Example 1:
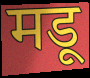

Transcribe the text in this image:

मडू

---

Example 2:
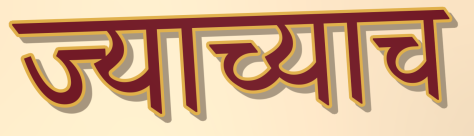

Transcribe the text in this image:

ज्याच्याच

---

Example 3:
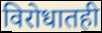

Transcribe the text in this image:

विरोधातही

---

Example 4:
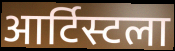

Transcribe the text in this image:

आर्टिस्टला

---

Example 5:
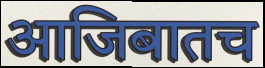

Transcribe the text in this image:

आजिबातच